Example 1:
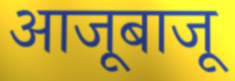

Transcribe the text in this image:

आजूबाजू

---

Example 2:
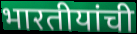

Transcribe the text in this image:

भारतीयांची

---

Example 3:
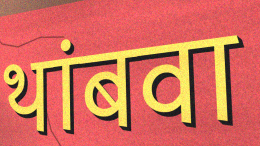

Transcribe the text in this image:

थांबवा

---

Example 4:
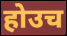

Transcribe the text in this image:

होउच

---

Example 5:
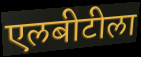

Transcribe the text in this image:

एलबीटीला